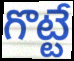
గొట్టే